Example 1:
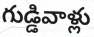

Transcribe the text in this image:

గుడ్డివాళ్లు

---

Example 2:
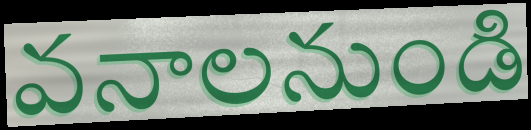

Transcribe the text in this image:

వనాలనుండి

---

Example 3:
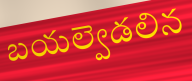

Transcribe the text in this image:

బయల్వెడలిన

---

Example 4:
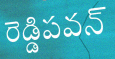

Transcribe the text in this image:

రెడ్డిపవన్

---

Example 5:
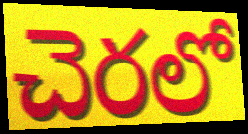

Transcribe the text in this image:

చెరలో